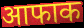
आफाक